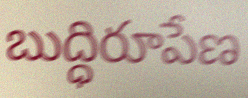
బుద్ధిరూపేణ